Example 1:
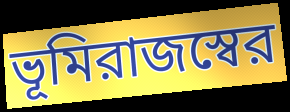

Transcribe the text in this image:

ভূমিরাজস্বের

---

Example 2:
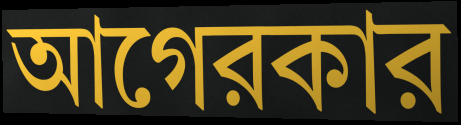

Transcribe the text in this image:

আগেরকার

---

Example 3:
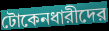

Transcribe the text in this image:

টোকেনধারীদের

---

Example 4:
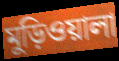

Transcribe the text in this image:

মুড়িওয়ালা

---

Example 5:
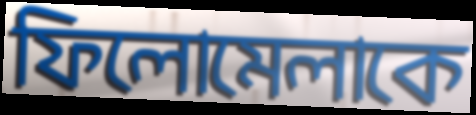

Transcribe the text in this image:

ফিলোমেলাকে